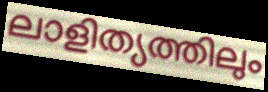
ലാളിത്യത്തിലും